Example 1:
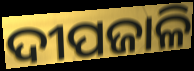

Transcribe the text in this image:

ଦୀପଜାଳି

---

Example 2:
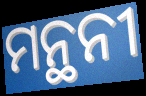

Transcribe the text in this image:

ମନ୍ଥନୀ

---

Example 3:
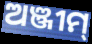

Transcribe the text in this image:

ଅଞ୍ଜୀମ୍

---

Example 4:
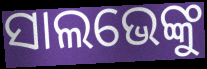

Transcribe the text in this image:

ସାଲଭେଙ୍କୁ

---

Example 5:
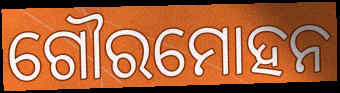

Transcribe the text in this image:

ଗୌରମୋହନ